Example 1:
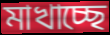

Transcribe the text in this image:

মাখাচ্ছে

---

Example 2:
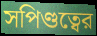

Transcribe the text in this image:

সপিণ্ডত্বের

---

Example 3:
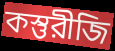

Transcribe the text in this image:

কস্তুরীজি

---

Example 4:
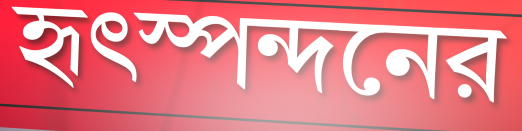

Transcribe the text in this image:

হৃৎস্পন্দনের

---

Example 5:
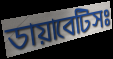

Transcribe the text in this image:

ডায়াবেটিসঃ